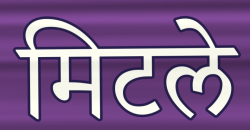
मिटले